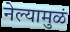
नेल्यामुळं